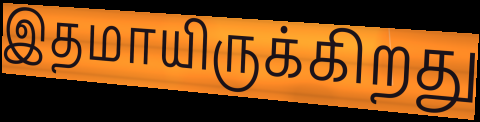
இதமாயிருக்கிறது